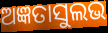
ଅଜ୍ଞତାସୁଲଭ